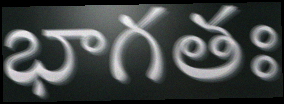
భాగతః